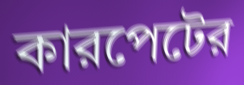
কারপেটের